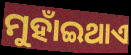
ମୁହାଁଇଥାଏ